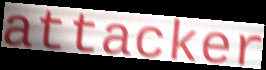
attacker